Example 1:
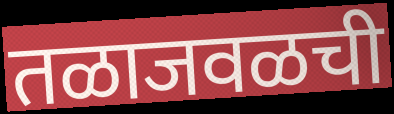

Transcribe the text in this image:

तळाजवळची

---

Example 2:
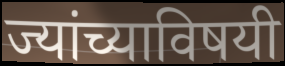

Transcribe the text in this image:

ज्यांच्याविषयी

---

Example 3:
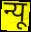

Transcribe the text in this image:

न्यू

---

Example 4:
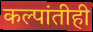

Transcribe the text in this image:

कल्पांतीही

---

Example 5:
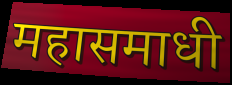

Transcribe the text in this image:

महासमाधी